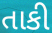
તાકી